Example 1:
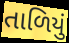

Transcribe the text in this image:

તાળિયું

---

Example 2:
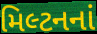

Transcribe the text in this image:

મિલ્ટનનાં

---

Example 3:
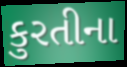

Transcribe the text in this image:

કુરતીના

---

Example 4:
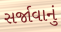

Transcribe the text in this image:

સર્જાવાનું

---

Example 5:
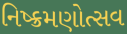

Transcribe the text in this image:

નિષ્ક્રમણોત્સવ